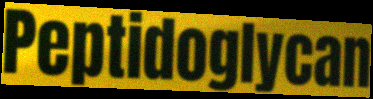
Peptidoglycan